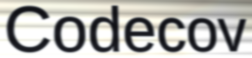
Codecov